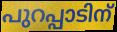
പുറപ്പാടിന്